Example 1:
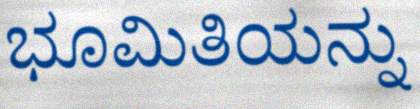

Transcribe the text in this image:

ಭೂಮಿತಿಯನ್ನು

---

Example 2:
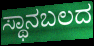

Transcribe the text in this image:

ಸ್ಥಾನಬಲದ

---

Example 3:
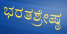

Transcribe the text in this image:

ಭರತಶ್ರೇಷ್ಠ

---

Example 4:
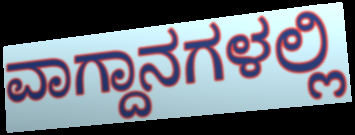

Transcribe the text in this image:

ವಾಗ್ದಾನಗಳಲ್ಲಿ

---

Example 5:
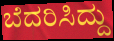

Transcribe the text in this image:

ಬೆದರಿಸಿದ್ದು